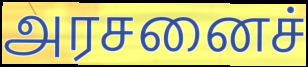
அரசனைச்